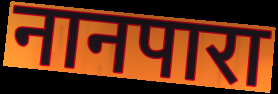
नानपारा